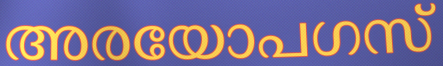
അരയോപഗസ്